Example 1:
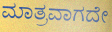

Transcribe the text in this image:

ಮಾತ್ರವಾಗದೇ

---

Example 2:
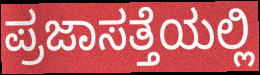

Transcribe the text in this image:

ಪ್ರಜಾಸತ್ತೆಯಲ್ಲಿ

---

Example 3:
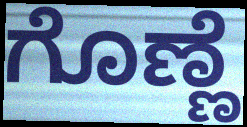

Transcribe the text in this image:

ಗೊಣ್ಣೆ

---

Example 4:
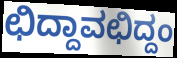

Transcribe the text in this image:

ಛಿದ್ದಾವಛಿದ್ದಂ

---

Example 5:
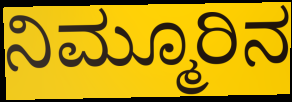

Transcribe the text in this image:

ನಿಮ್ಮೂರಿನ